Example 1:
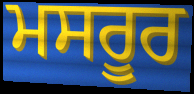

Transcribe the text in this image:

ਮਸਰੂਰ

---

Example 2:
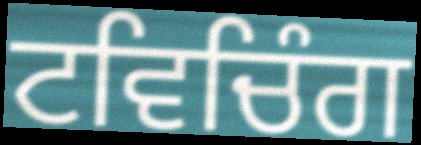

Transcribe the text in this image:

ਟਵਿਚਿੰਗ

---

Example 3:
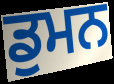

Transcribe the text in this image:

ਡੁਮਨ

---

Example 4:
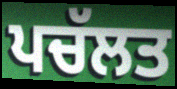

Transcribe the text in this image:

ਪਚੱਲਤ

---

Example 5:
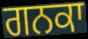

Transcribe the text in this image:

ਗਨਕਾ